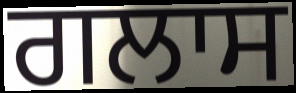
ਗਲਾਸ